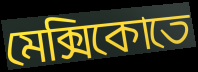
মেক্সিকোতে